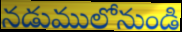
నడుములోనుండి